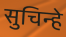
सुचिन्हे